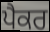
ਪੈਕਰ